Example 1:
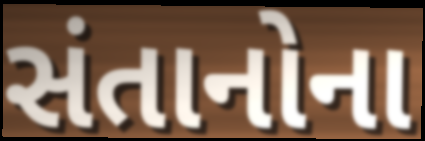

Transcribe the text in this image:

સંતાનોના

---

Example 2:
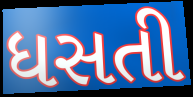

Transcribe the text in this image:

ધસતી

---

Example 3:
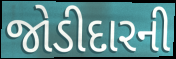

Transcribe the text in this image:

જોડીદારની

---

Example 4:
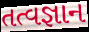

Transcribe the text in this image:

તત્વજ્ઞાન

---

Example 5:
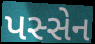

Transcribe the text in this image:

પસ્સેન